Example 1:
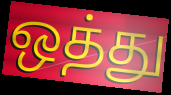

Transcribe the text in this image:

ஒத்து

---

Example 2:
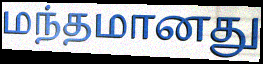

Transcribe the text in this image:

மந்தமானது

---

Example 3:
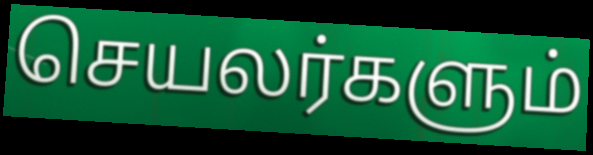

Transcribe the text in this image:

செயலர்களும்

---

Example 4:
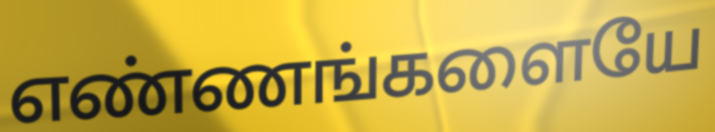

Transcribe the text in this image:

எண்ணங்களையே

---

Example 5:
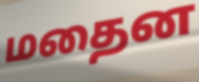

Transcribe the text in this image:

மதைன